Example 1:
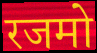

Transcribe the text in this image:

रजमो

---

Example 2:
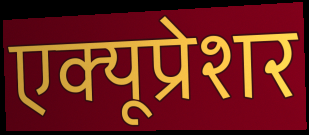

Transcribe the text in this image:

एक्यूप्रेशर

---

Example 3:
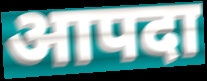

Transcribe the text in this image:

आपदा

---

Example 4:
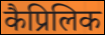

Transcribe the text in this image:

कैप्रिलिक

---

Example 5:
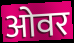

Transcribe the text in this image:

ओवर